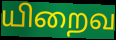
யிறைவ